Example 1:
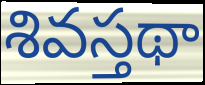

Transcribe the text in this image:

శివస్తథా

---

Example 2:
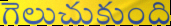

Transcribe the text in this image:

గెలుచుకుంది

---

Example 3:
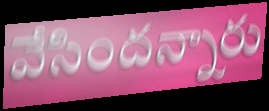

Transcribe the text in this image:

వేసిందన్నారు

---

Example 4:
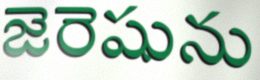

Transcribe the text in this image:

జెరెషును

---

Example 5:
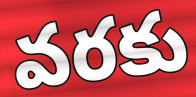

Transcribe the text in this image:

వరకు